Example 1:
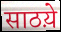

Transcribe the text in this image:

साठय़े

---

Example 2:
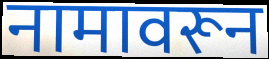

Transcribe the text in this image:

नामावरून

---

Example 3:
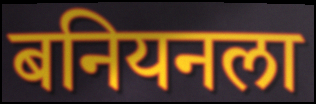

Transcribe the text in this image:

बनियनला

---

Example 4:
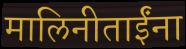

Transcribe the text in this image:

मालिनीताईंना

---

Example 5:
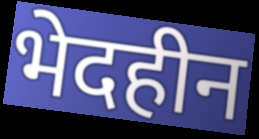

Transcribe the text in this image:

भेदहीन